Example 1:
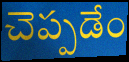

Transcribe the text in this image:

చెప్పడేం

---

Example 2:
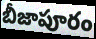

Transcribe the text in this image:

బీజాపూరం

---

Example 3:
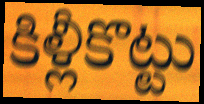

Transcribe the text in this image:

కిళ్లీకొట్టు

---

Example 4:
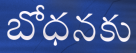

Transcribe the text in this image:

బోధనకు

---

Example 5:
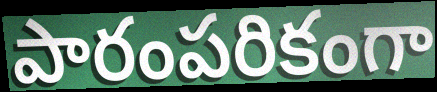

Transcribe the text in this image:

పారంపరికంగా